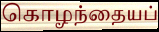
கொழந்தையப்